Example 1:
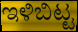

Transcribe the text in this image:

ಇಳಿಬಿಟ್ಟ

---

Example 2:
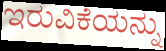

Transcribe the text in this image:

ಇರುವಿಕೆಯನ್ನು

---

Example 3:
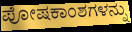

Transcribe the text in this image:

ಪೋಷಕಾಂಶಗಳನ್ನು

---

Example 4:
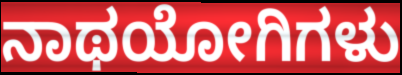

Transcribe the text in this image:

ನಾಥಯೋಗಿಗಳು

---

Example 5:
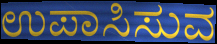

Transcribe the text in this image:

ಉಪಾಸಿಸುವ